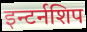
इन्टर्नशिप